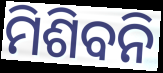
ମିଶିବନି